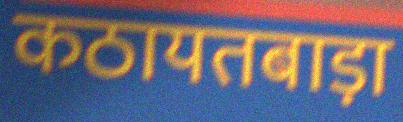
कठायतबाड़ा